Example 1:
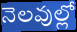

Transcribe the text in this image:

నెలవుల్లో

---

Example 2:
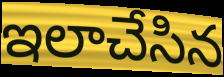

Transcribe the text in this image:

ఇలాచేసిన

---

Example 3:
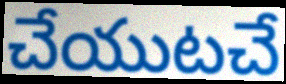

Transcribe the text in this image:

చేయుటచే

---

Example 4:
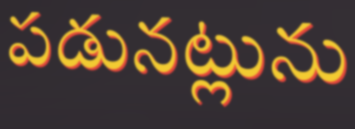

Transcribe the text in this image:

పడునట్లును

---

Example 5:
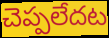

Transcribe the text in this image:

చెప్పలేదట